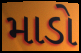
માડો